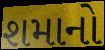
શમાનો